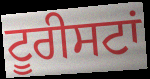
ਟੂਰੀਸਟਾਂ